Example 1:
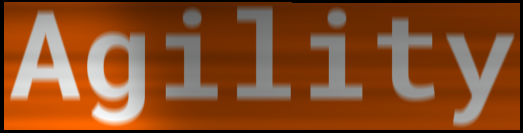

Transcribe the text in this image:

Agility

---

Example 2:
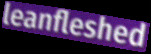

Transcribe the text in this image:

leanfleshed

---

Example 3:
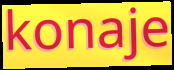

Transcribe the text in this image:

konaje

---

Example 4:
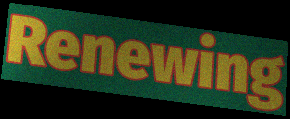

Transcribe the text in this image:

Renewing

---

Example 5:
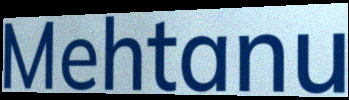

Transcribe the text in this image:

Mehtanu